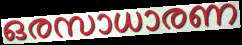
ഒരസാധാരണ